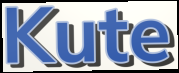
Kute